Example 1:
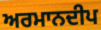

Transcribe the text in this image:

ਅਰਮਾਨਦੀਪ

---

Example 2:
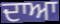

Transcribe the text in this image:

ਦਾਆ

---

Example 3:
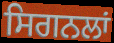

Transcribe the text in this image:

ਸਿਗਨਲਾਂ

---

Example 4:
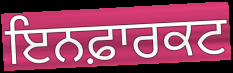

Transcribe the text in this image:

ਇਨਫ਼ਾਰਕਟ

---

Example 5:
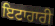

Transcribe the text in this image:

ਇਟਾਹਾਰੀ